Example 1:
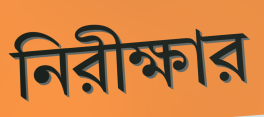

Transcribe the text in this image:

নিরীক্ষার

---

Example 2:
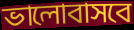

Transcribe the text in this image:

ভালোবাসবে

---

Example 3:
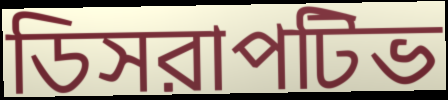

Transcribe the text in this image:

ডিসরাপটিভ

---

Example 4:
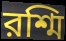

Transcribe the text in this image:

রশ্মি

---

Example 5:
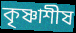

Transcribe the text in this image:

কৃষ্ণাশীষ